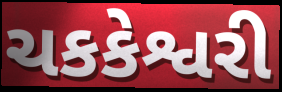
ચકકેશ્વરી